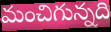
మంచిగున్నది